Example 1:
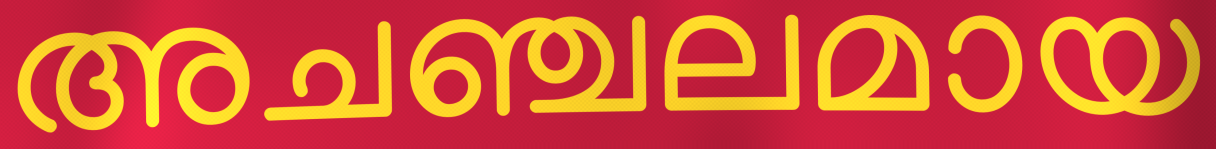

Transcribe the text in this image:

അചഞ്ചലമായ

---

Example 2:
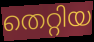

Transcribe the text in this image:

തെറ്റിയ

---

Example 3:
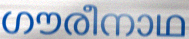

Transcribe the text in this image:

ഗൗരീനാഥ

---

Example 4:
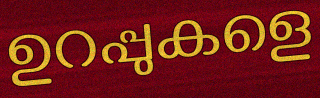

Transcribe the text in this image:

ഉറപ്പുകളെ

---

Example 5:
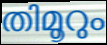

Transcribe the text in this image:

തിമൂറും